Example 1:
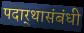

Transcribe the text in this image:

पदार्थासंबंधी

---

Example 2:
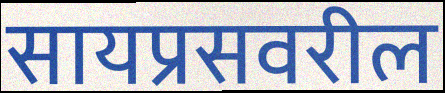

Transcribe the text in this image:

सायप्रसवरील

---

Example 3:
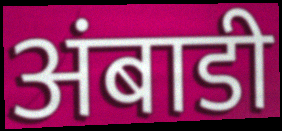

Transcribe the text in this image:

अंबाडी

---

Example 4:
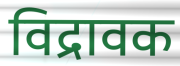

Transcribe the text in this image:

विद्रावक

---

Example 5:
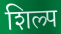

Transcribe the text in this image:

शिल्प